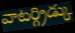
వాటర్గ్రిడ్కు